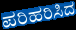
ಪರಿಹರಿಸಿದ